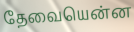
தேவையென்ன